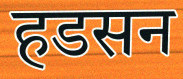
हडसन